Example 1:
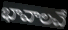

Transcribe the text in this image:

భావాలచే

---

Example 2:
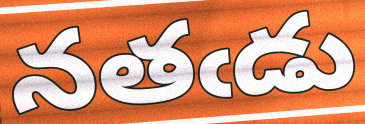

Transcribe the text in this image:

నతఁడు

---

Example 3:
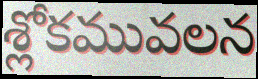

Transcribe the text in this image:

శ్లోకమువలన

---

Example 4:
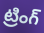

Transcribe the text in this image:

ట్రింగ్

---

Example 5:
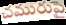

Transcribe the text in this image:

చమురుపై